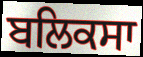
ਬਲਿਕਸਾ